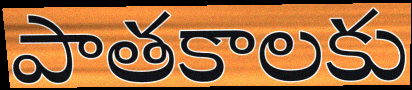
పాతకాలకు